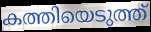
കത്തിയെടുത്ത്